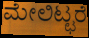
ಮೇಲಿಟ್ಟರೆ